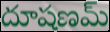
దూషణమ్